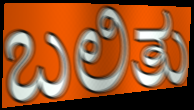
ಬಲಿತು